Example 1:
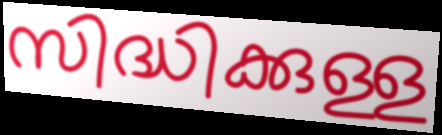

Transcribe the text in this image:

സിദ്ധിക്കുള്ള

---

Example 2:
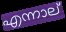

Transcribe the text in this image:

എന്നാല്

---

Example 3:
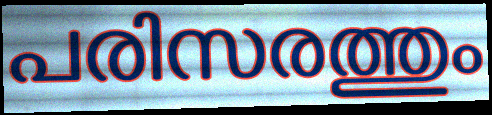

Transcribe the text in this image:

പരിസരത്തും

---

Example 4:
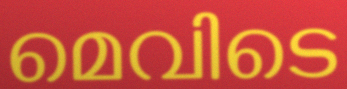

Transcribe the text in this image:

മെവിടെ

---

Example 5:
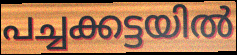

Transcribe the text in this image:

പച്ചക്കട്ടയിൽ